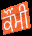
ਕੌਂਮੀ